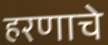
हरणाचे